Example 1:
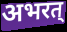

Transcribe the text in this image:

अभरत्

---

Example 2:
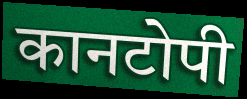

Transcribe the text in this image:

कानटोपी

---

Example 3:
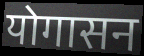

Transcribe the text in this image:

योगासन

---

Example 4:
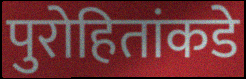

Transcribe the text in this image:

पुरोहितांकडे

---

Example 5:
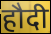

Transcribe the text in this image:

हौदी